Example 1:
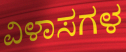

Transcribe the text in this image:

ವಿಳಾಸಗಳ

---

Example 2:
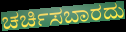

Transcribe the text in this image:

ಚರ್ಚಿಸಬಾರದು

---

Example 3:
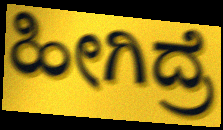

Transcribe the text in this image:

ಹೀಗಿದ್ರೆ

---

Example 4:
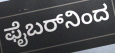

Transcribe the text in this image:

ಫೈಬರ್‌ನಿಂದ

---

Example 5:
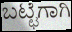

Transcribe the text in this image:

ಬಟ್ಟೆಗಾಗಿ